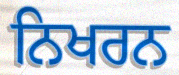
ਨਿਖਰਨ